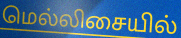
மெல்லிசையில்